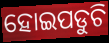
ହୋଇପଡୁଚି